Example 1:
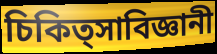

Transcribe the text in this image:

চিকিত্সাবিজ্ঞানী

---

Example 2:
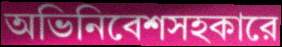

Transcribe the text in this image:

অভিনিবেশসহকারে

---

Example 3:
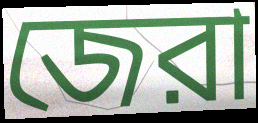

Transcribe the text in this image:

জেরা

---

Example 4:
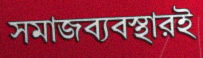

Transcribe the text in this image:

সমাজব্যবস্থারই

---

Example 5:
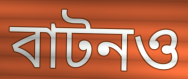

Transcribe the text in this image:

বাটনও